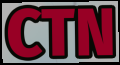
CTN